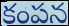
కంపన